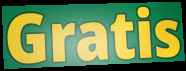
Gratis